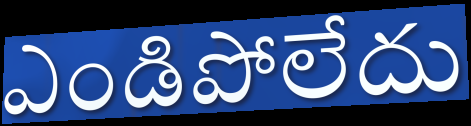
ఎండిపోలేదు